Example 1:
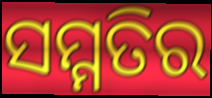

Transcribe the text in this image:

ସମ୍ମତିର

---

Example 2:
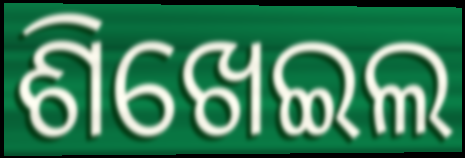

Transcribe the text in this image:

ଶିଖେଇଲ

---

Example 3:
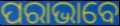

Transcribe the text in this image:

ପରାଭାବେ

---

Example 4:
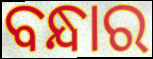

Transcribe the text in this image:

ବନ୍ଧାର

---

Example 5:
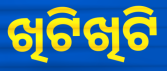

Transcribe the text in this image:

ଖିଟିଖିଟି